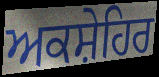
ਅਕਸ਼ੇਹਿਰ